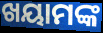
ଖୟାମଙ୍କ